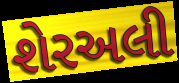
શેરઅલી